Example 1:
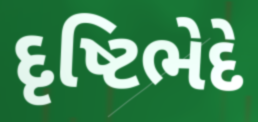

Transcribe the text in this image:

દૃષ્ટિભેદે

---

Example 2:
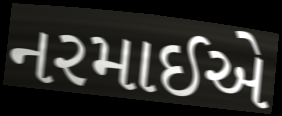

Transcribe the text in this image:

નરમાઈએ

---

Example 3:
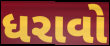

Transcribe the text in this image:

ધરાવો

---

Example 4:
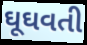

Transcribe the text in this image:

ઘૂઘવતી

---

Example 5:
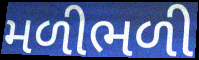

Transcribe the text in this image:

મળીભળી